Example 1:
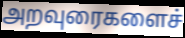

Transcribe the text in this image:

அறவுரைகளைச்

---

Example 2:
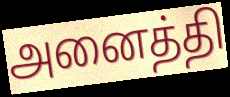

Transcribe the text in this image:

அனைத்தி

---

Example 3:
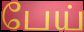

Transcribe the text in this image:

பேய்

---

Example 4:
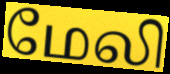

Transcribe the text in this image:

மேலி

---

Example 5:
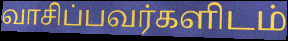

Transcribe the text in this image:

வாசிப்பவர்களிடம்